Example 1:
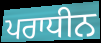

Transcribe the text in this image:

ਪਰਾਧੀਨ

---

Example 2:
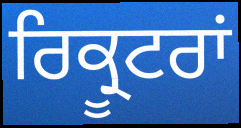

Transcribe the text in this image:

ਰਿਕ੍ਰੂਟਰਾਂ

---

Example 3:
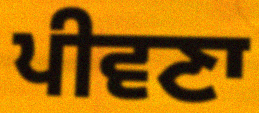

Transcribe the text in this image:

ਪੀਵਣਾ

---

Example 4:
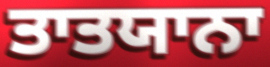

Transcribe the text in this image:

ਤਾਤਯਾਨਾ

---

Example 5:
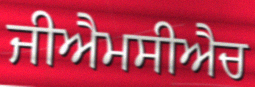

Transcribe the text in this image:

ਜੀਐਮਸੀਐਚ